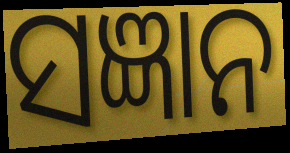
ସଜ୍ଞାନ